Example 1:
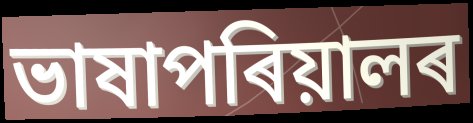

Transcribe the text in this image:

ভাষাপৰিয়ালৰ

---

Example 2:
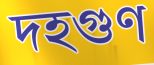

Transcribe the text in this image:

দহগুণ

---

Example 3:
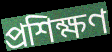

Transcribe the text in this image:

প্ৰশিক্ষণ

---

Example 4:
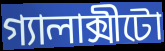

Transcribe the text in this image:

গ্যালাক্সীটো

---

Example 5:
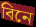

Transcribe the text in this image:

বিনে